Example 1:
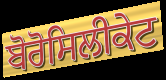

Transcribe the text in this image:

ਬੋਰੋਸਿਲੀਕੇਟ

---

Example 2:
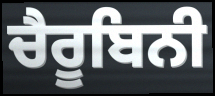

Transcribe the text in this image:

ਚੈਰੂਬਿਨੀ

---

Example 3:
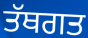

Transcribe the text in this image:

ਤੱਥਗਤ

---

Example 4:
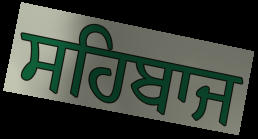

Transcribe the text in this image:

ਸਹਿਬਾਜ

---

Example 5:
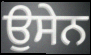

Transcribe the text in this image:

ਉਸੇਨ